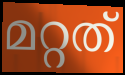
മറ്റത്